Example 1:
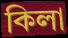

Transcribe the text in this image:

কিলা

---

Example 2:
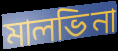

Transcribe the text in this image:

মালভিনা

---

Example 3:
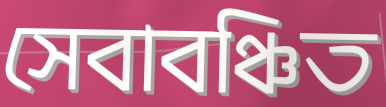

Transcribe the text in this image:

সেবাবঞ্চিত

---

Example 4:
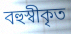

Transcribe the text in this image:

বহুস্বীকৃত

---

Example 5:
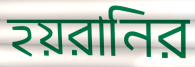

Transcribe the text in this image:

হয়রানির